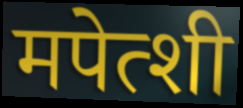
मपेत्शी